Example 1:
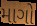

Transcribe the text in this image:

માગો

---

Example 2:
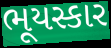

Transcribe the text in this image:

ભૂયસ્કાર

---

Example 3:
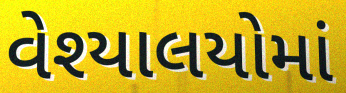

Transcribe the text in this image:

વેશ્યાલયોમાં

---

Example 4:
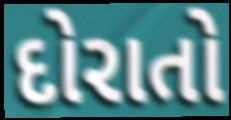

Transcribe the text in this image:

દોરાતો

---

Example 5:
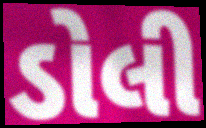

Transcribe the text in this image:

ડોલી